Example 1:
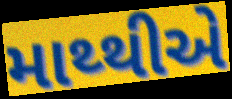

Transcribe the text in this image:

માથ્થીએ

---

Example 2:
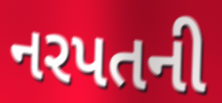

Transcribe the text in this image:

નરપતની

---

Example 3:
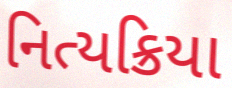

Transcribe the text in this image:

નિત્યક્રિયા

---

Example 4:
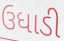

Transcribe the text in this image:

ઉધાડી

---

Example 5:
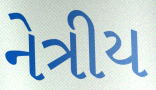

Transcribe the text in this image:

નેત્રીય